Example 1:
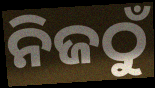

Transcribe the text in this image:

ନିଜଠୁଁ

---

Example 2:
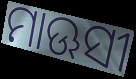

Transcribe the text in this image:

ମାଊସୀ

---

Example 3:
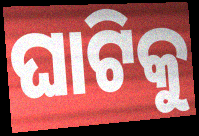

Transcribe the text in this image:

ଘାଟିକୁ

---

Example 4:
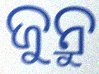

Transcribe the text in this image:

ଜୁନ୍ରୁ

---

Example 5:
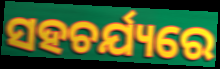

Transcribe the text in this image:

ସହଚର୍ଯ୍ୟରେ